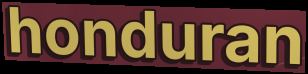
honduran